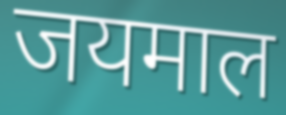
जयमाल